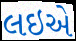
લઇએ